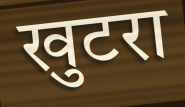
खुटरा